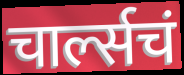
चार्ल्सचं